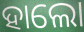
ହାଲୋ